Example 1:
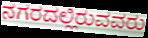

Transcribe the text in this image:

ನಗರದಲ್ಲಿರುವವರು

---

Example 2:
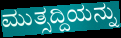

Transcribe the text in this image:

ಮುತ್ಸದ್ದಿಯನ್ನು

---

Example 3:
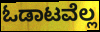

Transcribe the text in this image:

ಓಡಾಟವೆಲ್ಲ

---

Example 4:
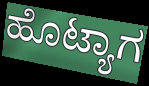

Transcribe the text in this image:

ಹೊಟ್ಯಾಗ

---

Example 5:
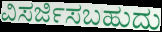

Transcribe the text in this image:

ವಿಸರ್ಜಿಸಬಹುದು